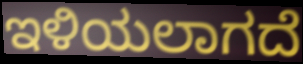
ಇಳಿಯಲಾಗದೆ